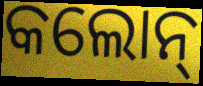
କଲୋନ୍